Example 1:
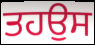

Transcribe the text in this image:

ਤਹਉਸ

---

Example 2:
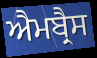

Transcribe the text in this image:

ਐਮਬ੍ਰੈਸ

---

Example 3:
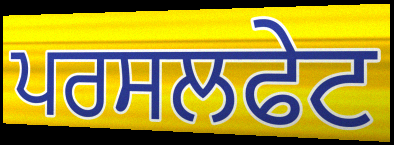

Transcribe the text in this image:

ਪਰਸਲਫੇਟ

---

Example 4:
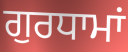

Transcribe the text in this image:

ਗੁਰਧਾਮਾਂ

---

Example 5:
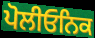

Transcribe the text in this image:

ਪੋਲੀਓਨਿਕ